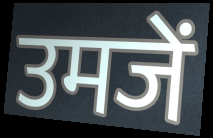
उमजें